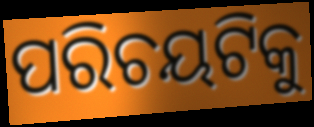
ପରିଚୟଟିକୁ